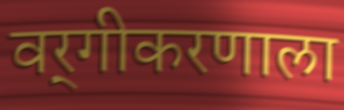
वर्गीकरणाला